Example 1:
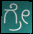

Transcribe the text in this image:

ಗ್ರೇ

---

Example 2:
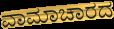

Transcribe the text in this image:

ವಾಮಾಚಾರದ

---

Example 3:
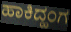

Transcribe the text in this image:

ಹಾಕಿದ್ಹಂಗ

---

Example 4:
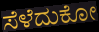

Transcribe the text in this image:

ಸೆಳೆದುಕೋ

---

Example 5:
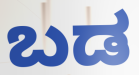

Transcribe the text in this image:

ಬಡ